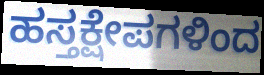
ಹಸ್ತಕ್ಷೇಪಗಳಿಂದ